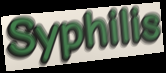
Syphilis